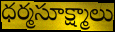
ధర్మసూక్ష్మాలు